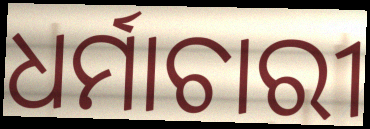
ଧର୍ମାଚାରୀ